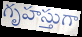
గృహస్తుగా